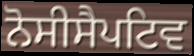
ਨੋਸੀਸੈਪਟਿਵ